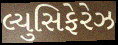
લ્યુસિફેરેઝ